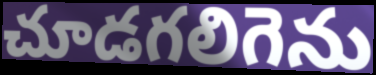
చూడగలిగెను